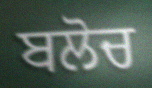
ਬਲੋਚ